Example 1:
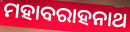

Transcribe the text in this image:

ମହାବରାହନାଥ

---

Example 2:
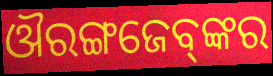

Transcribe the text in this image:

ଔରଙ୍ଗଜେବ୍‌ଙ୍କର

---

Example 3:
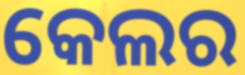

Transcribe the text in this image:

କେଲର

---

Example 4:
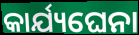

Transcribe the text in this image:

କାର୍ଯ୍ୟଘେନା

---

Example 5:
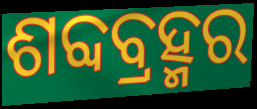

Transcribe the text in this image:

ଶବ୍ଦବ୍ରହ୍ମର